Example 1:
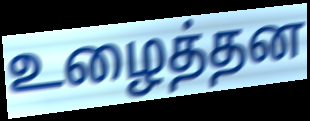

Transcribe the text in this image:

உழைத்தன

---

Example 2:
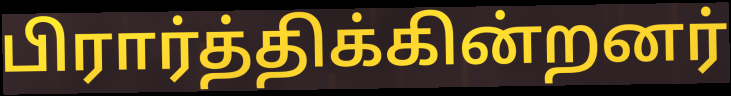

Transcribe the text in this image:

பிரார்த்திக்கின்றனர்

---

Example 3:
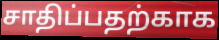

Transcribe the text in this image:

சாதிப்பதற்காக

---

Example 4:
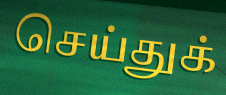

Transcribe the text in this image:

செய்துக்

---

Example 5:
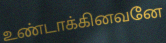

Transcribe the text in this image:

உண்டாக்கினவனே